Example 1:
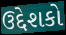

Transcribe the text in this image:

ઉદ્દેશકો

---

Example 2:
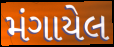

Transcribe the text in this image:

મંગાયેલ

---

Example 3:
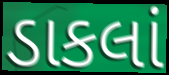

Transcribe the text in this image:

ડાકલાં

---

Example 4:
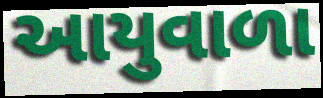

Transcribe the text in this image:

આયુવાળા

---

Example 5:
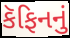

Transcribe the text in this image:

કૅફિનનું